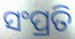
ସଂପ୍ରତି